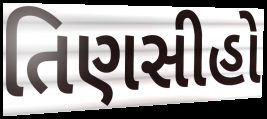
તિણસીહો